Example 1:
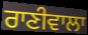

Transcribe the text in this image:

ਰਾਣੀਵਾਲਾ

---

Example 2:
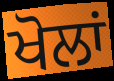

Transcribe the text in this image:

ਖੋਲਾਂ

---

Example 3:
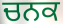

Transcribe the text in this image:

ਚਨਕ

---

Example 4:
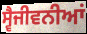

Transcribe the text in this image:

ਸ੍ਵੈਜੀਵਨੀਆਂ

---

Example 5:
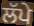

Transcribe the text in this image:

ਲੱਪੇ